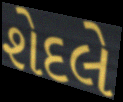
શેદલે